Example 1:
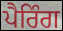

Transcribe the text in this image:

ਪੈਰਿੰਗ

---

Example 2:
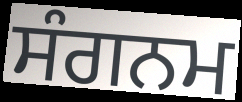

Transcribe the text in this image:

ਸੰਗਨਮ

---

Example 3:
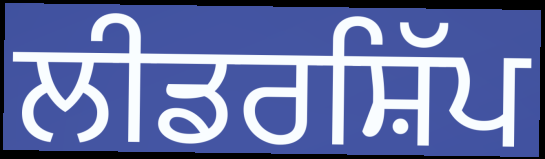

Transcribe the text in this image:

ਲੀਡਰਸ਼ਿੱਪ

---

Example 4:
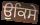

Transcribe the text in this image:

ਉਕਿਸੇ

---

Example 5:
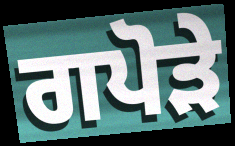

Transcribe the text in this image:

ਗਪੋੜੇ